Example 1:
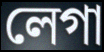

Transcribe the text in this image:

লেগা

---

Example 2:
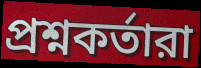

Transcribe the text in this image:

প্রশ্নকর্তারা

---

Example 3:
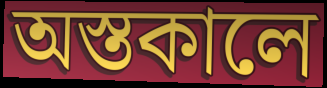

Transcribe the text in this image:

অস্তকালে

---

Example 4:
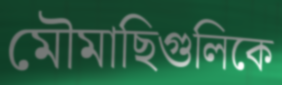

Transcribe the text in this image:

মৌমাছিগুলিকে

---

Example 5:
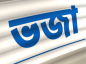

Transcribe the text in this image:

ভজা